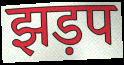
झड़प